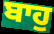
ਬਾਹੁ